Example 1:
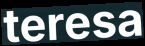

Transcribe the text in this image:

teresa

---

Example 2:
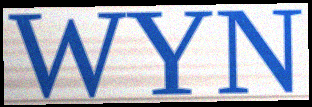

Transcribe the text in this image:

WYN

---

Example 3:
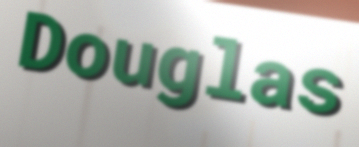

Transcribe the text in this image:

Douglas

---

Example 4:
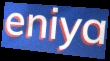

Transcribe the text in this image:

eniya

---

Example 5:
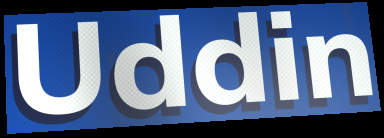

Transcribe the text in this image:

Uddin